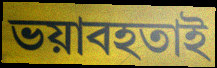
ভয়াবহতাই